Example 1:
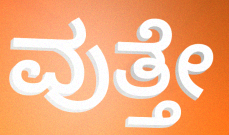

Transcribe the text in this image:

ವುತ್ತೇ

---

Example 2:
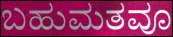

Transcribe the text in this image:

ಬಹುಮತವೂ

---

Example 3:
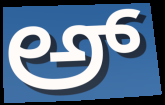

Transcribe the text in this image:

ಅ್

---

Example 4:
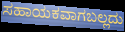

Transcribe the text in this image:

ಸಹಾಯಕವಾಗಬಲ್ಲದು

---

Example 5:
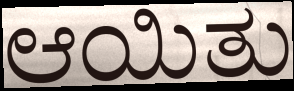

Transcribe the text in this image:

ಆಯಿತು